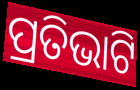
ପ୍ରତିଭାଟି